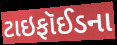
ટાઇફૉઈડના